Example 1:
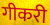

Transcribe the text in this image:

गीकरी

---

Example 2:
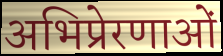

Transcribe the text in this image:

अभिप्रेरणाओं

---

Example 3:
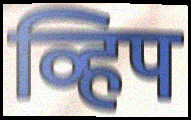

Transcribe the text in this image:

व्हिप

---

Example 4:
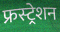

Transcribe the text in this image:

फ्रस्‍ट्रेशन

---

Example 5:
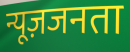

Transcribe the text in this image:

न्यूज़जनता